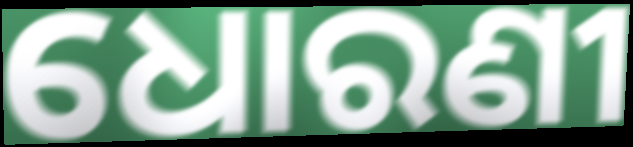
ଧୋରଣୀ